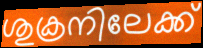
ശുക്രനിലേക്ക്